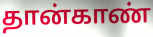
தான்காண்